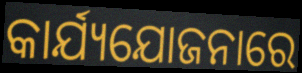
କାର୍ଯ୍ୟଯୋଜନାରେ